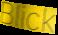
Blick